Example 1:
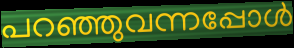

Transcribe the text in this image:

പറഞ്ഞുവന്നപ്പോൾ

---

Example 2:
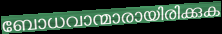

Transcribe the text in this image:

ബോധവാന്മാരായിരിക്കുക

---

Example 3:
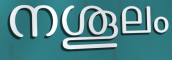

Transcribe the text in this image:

നശൂലം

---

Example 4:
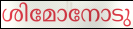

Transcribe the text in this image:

ശിമോനോടു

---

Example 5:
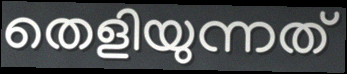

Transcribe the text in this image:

തെളിയുന്നത്